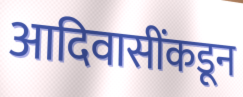
आदिवासींकडून